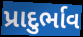
પ્રાદુર્ભાવ